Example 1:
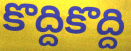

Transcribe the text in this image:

కొద్దికొద్ది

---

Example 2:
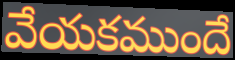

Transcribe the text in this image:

వేయకముందే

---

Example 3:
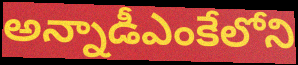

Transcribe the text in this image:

అన్నాడీఎంకేలోని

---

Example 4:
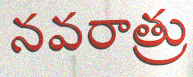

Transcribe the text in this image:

నవరాత్రు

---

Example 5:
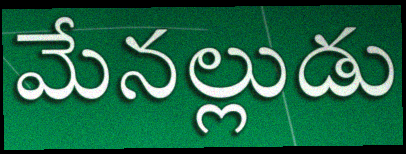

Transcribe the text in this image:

మేనల్లుడు